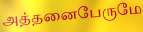
அத்தனைபேருமே